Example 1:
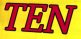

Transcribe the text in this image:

TEN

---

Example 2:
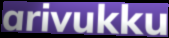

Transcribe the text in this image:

arivukku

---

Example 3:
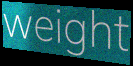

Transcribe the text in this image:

weight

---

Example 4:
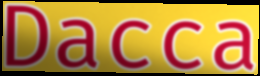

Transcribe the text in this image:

Dacca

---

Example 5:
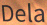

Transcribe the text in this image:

Dela